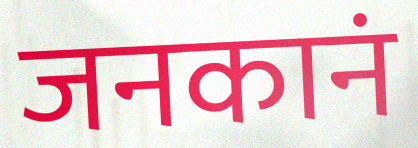
जनकानं